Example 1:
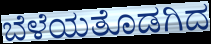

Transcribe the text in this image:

ಬೆಳೆಯತೊಡಗಿದ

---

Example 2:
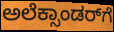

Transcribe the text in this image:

ಅಲೆಕ್ಸಾಂಡರ್‌ಗೆ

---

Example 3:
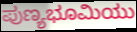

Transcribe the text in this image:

ಪುಣ್ಯಭೂಮಿಯು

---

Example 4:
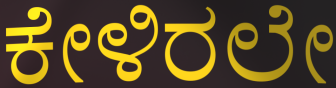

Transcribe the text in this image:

ಕೇಳಿರಲೇ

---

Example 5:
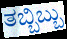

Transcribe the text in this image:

ತಬ್ಬಿಬ್ಬು